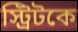
স্ট্রিটকে